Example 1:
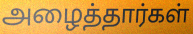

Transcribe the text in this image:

அழைத்தார்கள்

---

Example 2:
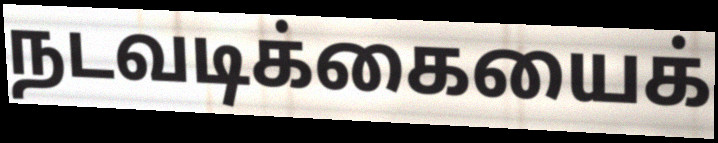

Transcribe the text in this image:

நடவடிக்கையைக்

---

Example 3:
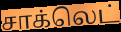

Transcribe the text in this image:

சாக்லெட்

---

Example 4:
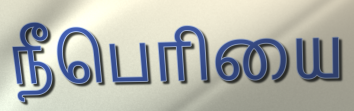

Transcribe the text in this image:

நீபெரியை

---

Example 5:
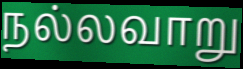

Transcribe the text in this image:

நல்லவாறு